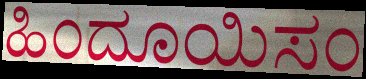
ಹಿಂದೂಯಿಸಂ